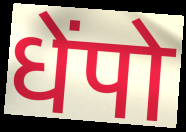
धेंपो